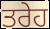
ਤਰੇਹ